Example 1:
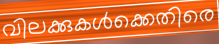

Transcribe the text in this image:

വിലക്കുകൾക്കെതിരെ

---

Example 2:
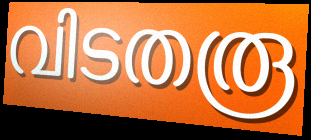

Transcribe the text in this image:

വിടതരൂ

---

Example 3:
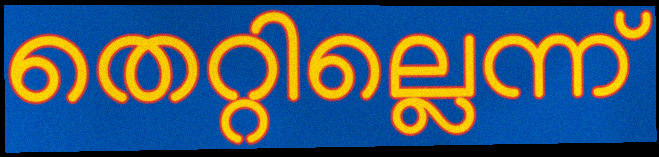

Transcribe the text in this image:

തെറ്റില്ലെന്ന്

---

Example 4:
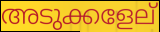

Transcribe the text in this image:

അടുക്കളേല്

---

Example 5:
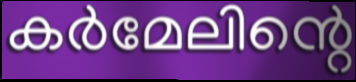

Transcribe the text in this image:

കർമേലിന്റെ